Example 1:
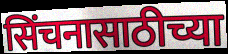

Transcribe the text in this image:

सिंचनासाठीच्या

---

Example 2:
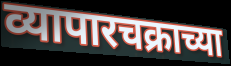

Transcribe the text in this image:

व्यापारचक्राच्या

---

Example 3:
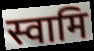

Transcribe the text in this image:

स्वामि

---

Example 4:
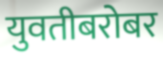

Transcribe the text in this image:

युवतीबरोबर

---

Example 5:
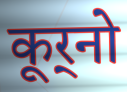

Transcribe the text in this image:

कूर्नो